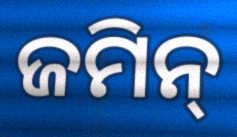
ଜମିନ୍